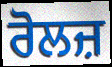
ਰੋਲਜ਼